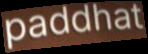
paddhat